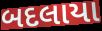
બદલાયા